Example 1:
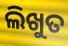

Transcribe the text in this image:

ଲିଖୁତ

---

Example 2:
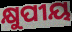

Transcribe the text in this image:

କ୍ଷୁପୀୟ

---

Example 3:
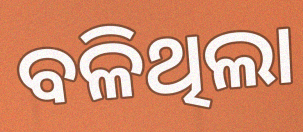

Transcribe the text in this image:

ବଳିଥିଲା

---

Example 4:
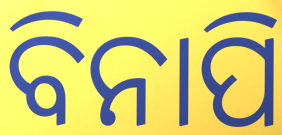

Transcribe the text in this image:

ବିନାପି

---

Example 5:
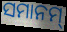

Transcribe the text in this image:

ସମାନମ୍